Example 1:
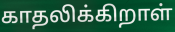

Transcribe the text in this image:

காதலிக்கிறாள்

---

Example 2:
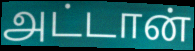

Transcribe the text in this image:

அட்டான்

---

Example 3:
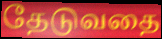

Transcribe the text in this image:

தேடுவதை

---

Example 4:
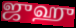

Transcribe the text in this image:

ஜுஹு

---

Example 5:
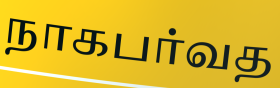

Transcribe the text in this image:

நாகபர்வத